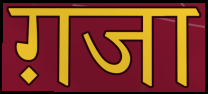
ग़जा